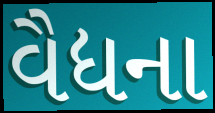
વૈદ્યના